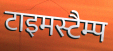
टाइमस्टैम्प